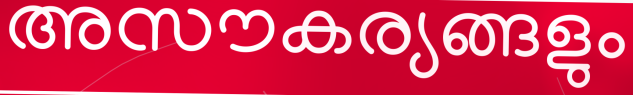
അസൗകര്യങ്ങളും